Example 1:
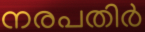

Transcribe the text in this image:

നരപതിർ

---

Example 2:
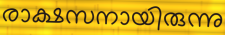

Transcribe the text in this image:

രാക്ഷസനായിരുന്നു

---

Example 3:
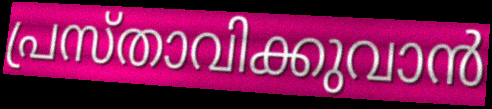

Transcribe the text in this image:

പ്രസ്താവിക്കുവാൻ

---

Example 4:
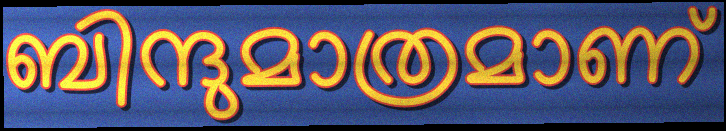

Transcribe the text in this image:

ബിന്ദുമാത്രമാണ്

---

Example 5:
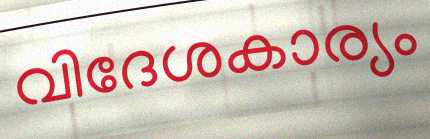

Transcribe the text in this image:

വിദേശകാര്യം